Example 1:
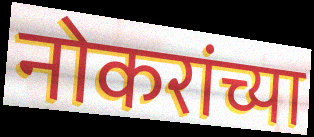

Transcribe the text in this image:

नोकरांच्या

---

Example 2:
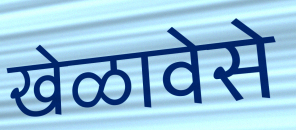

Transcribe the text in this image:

खेळावेसे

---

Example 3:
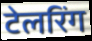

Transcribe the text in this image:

टेलरिंग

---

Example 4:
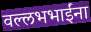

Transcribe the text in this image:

वल्लभभाईंना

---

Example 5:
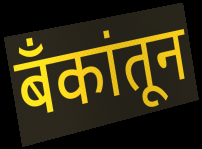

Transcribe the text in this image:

बँकांतून